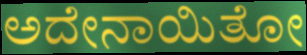
ಅದೇನಾಯಿತೋ